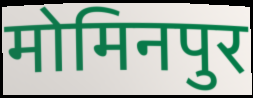
मोमिनपुर